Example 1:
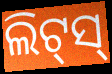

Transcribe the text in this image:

ଲିଟ୍‌ସ୍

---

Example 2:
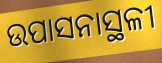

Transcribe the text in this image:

ଉପାସନାସ୍ଥଳୀ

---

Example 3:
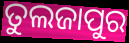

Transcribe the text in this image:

ତୁଲଜାପୁର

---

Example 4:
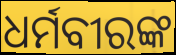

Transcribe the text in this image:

ଧର୍ମବୀରଙ୍କ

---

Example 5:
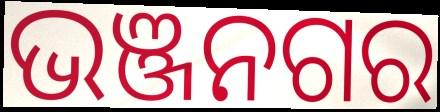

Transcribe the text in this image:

ଭଞ୍ଜନଗର